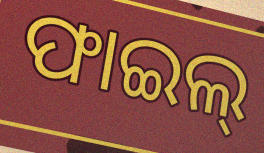
ଫାଇଲ୍